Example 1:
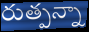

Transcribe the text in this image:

రుత్పన్నా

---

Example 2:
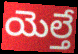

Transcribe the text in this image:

యెల్తే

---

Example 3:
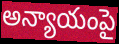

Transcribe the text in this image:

అన్యాయంపై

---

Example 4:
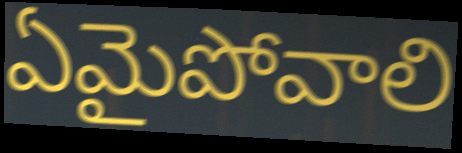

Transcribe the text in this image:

ఏమైపోవాలి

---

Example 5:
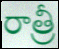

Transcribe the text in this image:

రాత్రీ